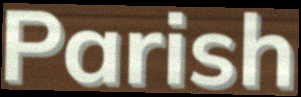
Parish